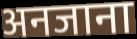
अनजाना